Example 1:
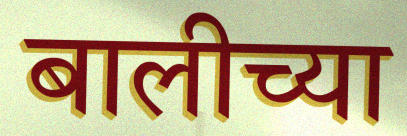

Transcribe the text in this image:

बालीच्या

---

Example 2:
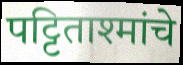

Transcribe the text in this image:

पट्टिताश्मांचे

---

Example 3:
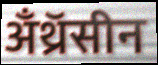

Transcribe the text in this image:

अँथ्रॅसीन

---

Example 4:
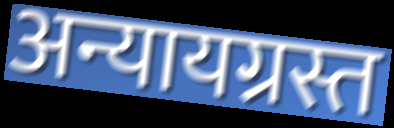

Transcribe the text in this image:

अन्यायग्रस्त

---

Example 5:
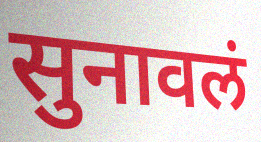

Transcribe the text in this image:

सुनावलं